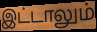
இட்டாலும்